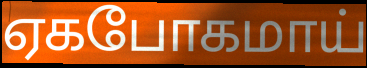
ஏகபோகமாய்